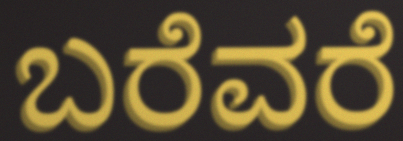
ಬರೆವರೆ